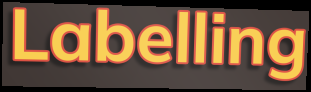
Labelling